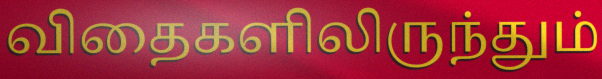
விதைகளிலிருந்தும்